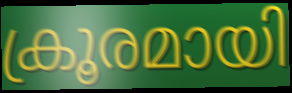
ക്രൂരമായി